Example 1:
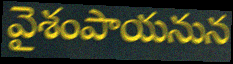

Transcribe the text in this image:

వైశంపాయనున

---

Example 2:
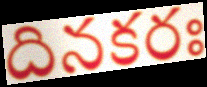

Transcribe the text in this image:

దినకరః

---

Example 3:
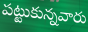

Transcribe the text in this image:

పట్టుకున్నవారు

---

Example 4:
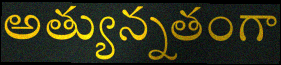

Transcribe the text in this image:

అత్యున్నతంగా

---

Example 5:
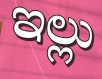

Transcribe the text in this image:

ఇల్లు